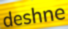
deshne